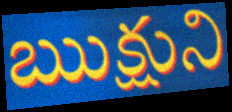
ఋక్షుని